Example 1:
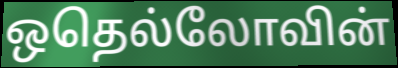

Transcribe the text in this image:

ஒதெல்லோவின்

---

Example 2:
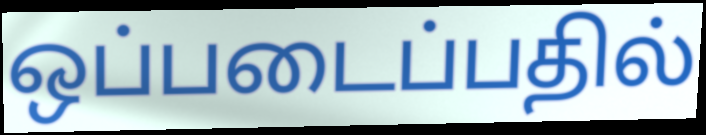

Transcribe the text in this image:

ஒப்படைப்பதில்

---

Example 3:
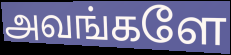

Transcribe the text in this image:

அவங்களே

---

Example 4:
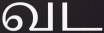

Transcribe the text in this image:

வட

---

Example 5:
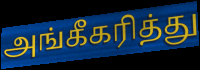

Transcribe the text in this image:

அங்கீகரித்து